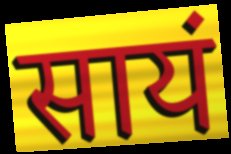
सायं